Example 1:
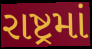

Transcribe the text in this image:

રાષ્ટ્રમાં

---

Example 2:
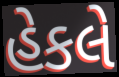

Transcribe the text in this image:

હેકલે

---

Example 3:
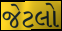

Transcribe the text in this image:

જેટલો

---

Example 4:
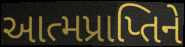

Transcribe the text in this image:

આત્મપ્રાપ્તિને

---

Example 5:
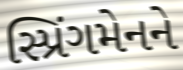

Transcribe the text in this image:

સ્પ્રિંગમેનને